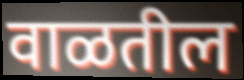
वाळतील